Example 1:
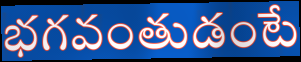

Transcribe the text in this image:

భగవంతుడంటే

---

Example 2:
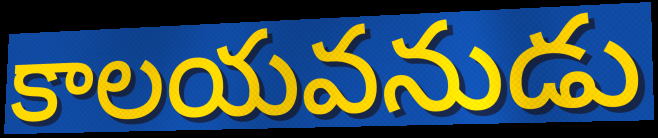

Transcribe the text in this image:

కాలయవనుడు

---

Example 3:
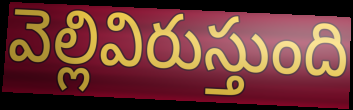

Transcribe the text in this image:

వెల్లివిరుస్తుంది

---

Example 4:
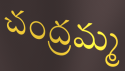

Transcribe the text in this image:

చంద్రమ్మ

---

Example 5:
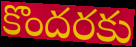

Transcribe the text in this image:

కొందరకు